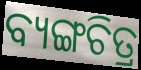
ବ୍ୟଙ୍ଗଚିତ୍ର